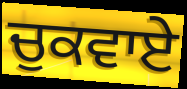
ਚੁਕਵਾਏ